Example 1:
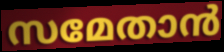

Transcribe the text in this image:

സമേതാൻ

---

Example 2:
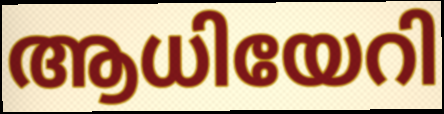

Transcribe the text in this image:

ആധിയേറി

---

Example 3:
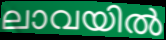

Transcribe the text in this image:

ലാവയിൽ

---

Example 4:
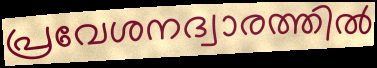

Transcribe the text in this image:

പ്രവേശനദ്വാരത്തിൽ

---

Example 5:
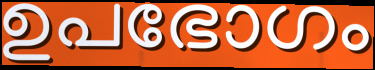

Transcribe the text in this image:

ഉപഭോഗം